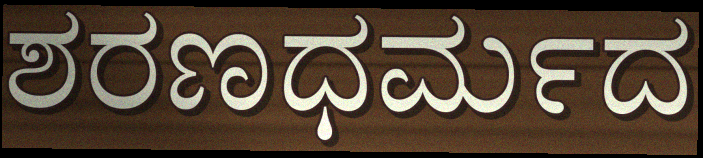
ಶರಣಧರ್ಮದ